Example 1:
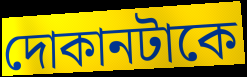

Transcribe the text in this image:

দোকানটাকে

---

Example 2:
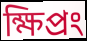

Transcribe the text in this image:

ক্ষিপ্রং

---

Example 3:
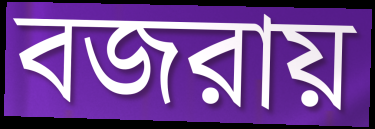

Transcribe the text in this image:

বজরায়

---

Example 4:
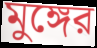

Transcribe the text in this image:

মুঙ্গের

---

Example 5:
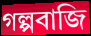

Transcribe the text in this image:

গল্পবাজি